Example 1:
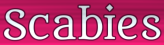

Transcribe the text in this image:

Scabies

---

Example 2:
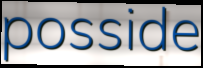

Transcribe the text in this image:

posside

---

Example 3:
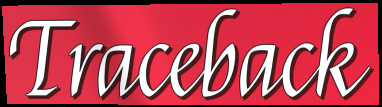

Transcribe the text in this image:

Traceback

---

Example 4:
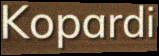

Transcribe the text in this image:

Kopardi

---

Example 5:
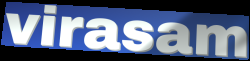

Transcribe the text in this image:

virasam